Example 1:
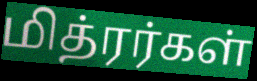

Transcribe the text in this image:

மித்ரர்கள்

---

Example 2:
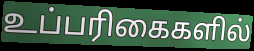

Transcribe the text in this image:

உப்பரிகைகளில்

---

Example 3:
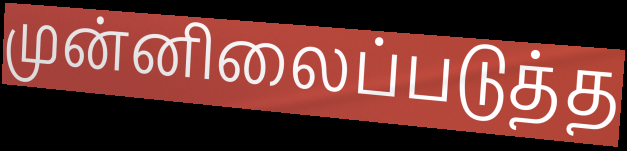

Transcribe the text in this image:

முன்னிலைப்படுத்த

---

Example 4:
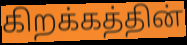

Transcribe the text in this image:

கிறக்கத்தின்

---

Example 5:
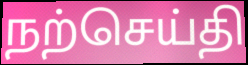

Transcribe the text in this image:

நற்செய்தி